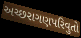
અચ્છરાગણપરિવુતો